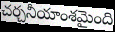
చర్చనీయాంశమైంది